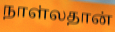
நாள்லதான்